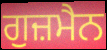
ਗੁਜ਼ਮੈਨ